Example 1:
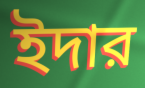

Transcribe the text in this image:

ইদার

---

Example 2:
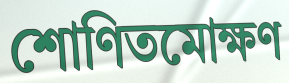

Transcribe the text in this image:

শোণিতমোক্ষণ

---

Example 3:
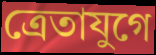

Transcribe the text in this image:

ত্রেতাযুগে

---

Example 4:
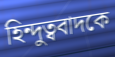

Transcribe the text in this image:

হিন্দুত্ববাদকে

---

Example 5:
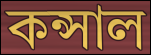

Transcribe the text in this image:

কন্সাল